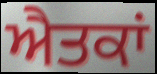
ਐਤਕਾਂ